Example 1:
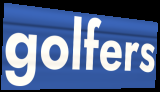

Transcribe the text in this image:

golfers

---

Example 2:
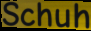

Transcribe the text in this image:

Schuh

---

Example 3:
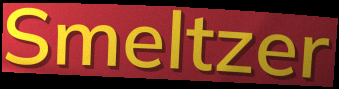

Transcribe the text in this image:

Smeltzer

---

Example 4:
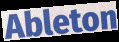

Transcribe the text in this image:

Ableton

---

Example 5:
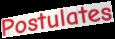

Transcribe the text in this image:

Postulates